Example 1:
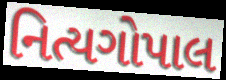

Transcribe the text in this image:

નિત્યગોપાલ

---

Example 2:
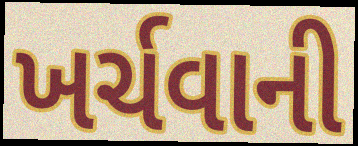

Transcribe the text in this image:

ખર્ચવાની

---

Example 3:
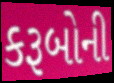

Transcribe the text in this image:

કરૂબોની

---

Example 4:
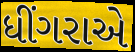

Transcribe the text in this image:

ધીંગરાએ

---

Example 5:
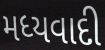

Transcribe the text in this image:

મધ્યવાદી